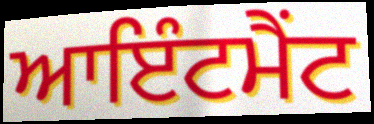
ਆਇੰਟਮੈਂਟ